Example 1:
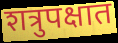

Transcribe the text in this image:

शत्रुपक्षात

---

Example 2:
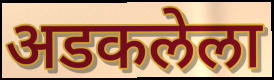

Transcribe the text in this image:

अडकलेला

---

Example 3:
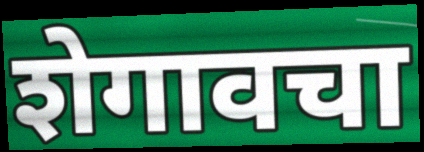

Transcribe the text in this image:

शेगावचा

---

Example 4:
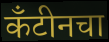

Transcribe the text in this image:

कँटीनचा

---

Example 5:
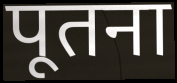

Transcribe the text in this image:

पूतना